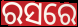
ରସରେ